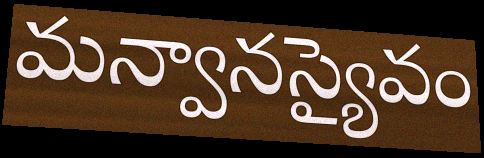
మన్వానస్యైవం